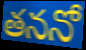
తననో